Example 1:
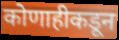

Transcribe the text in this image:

कोणाहीकडून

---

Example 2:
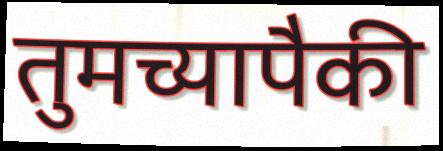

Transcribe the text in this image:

तुमच्यापैकी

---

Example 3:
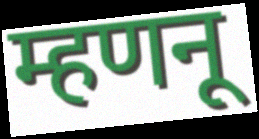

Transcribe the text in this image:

म्हणनू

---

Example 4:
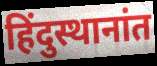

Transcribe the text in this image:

हिंदुस्थानांत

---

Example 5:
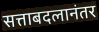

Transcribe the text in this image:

सत्ताबदलानंतर